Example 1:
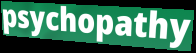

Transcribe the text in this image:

psychopathy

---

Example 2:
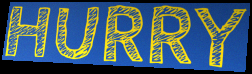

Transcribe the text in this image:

HURRY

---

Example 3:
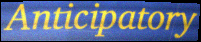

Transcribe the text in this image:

Anticipatory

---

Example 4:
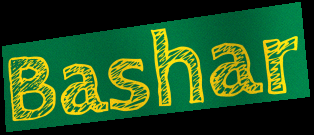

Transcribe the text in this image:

Bashar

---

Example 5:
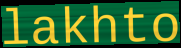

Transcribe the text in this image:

lakhto